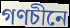
গণচীনে